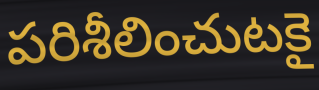
పరిశీలించుటకై